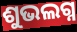
ଶୁଭଲଗ୍ନ